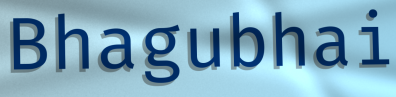
Bhagubhai